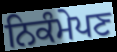
ਨਿਕੰਮੇਪਣ